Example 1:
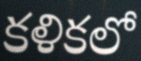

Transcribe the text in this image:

కళికలో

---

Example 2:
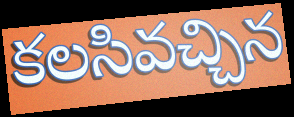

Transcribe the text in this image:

కలసివచ్చిన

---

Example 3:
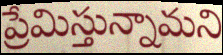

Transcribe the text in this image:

ప్రేమిస్తున్నామని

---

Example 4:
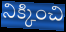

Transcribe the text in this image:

నిక్కించి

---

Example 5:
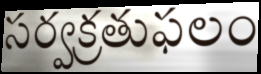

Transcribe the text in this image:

సర్వక్రతుఫలం